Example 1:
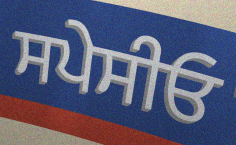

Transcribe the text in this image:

ਸਪੇਸੀਓ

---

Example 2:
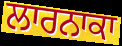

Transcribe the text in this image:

ਲਾਰਨਾਕਾ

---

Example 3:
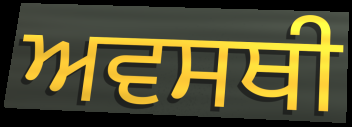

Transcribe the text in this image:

ਅਵਸਥੀ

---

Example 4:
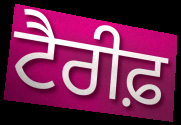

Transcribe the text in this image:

ਟੈਰੀਫ਼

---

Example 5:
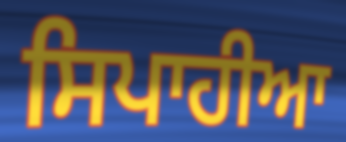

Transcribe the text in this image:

ਸਿਪਾਹੀਆ